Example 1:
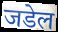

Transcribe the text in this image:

जडेल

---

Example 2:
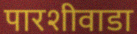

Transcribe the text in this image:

पारशीवाडा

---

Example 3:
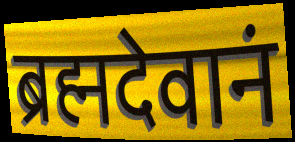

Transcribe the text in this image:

ब्रह्मदेवानं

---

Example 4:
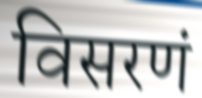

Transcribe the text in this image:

विसरणं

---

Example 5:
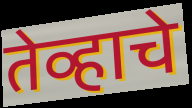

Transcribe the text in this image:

तेव्हाचे